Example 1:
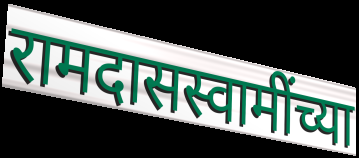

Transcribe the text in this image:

रामदासस्वामींच्या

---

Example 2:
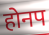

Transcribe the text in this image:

होनप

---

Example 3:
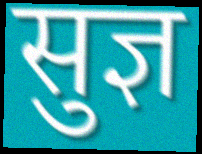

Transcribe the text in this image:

सुज्ञ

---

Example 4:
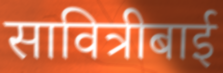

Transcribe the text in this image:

सावित्रीबाई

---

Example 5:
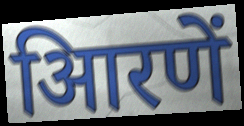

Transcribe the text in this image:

आिरणें